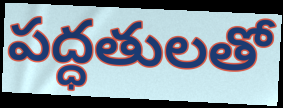
పద్ధతులతో